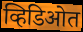
व्हिडिओत